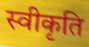
स्‍वीकृति